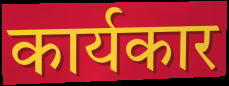
कार्यकार